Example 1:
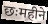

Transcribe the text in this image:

छःमहीने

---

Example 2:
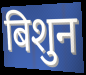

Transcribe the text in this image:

बिशुन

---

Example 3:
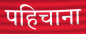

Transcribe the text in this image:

पहिचाना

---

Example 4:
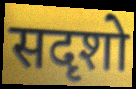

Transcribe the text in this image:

सदृशो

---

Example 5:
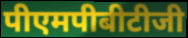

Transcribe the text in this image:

पीएमपीबीटीजी